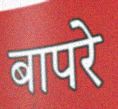
बापरे